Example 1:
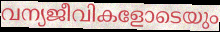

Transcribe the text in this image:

വന്യജീവികളോടെയും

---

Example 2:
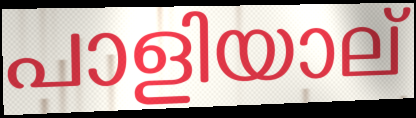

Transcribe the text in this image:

പാളിയാല്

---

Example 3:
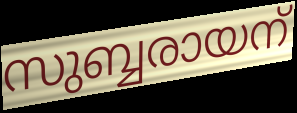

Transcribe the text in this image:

സുബ്ബരായന്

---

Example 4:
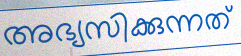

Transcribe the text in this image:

അഭ്യസിക്കുന്നത്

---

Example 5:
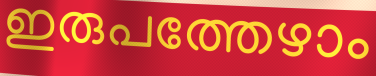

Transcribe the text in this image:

ഇരുപത്തേഴാം